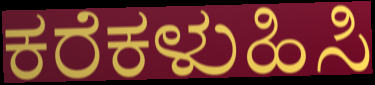
ಕರೆಕಳುಹಿಸಿ